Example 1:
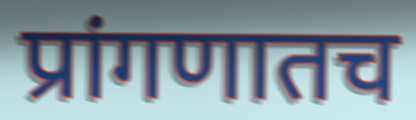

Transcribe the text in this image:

प्रांगणातच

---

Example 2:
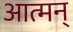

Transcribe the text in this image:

आत्मन्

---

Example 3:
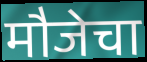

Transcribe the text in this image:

मौजेचा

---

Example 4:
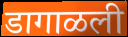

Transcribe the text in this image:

डागाळली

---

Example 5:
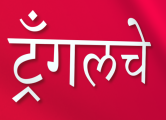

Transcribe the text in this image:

ट्रँगलचे